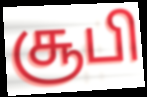
சூபி